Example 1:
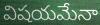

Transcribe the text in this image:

విషయమేనా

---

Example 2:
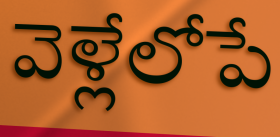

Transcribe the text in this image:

వెళ్లేలోపే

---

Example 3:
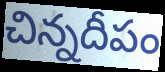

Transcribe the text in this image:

చిన్నదీపం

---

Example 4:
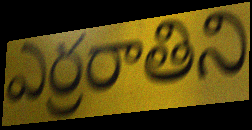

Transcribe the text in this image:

ఎర్రరాతిని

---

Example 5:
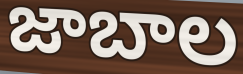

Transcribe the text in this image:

జాబాల